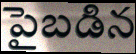
పైబడిన